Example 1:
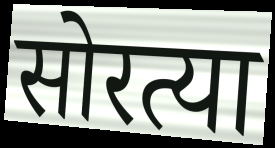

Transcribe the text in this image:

सोरत्या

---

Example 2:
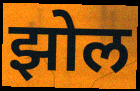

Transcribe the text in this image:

झोल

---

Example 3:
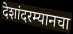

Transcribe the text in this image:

देशांदरम्यानचा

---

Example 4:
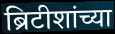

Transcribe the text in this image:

ब्रिटीशांच्या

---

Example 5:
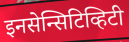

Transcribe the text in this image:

इनसेन्सिटिव्हिटी